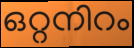
ഒറ്റനിറം